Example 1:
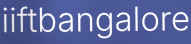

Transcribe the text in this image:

iiftbangalore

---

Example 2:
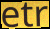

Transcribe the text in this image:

etr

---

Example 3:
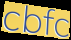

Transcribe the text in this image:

cbfc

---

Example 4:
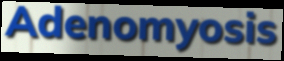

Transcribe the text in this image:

Adenomyosis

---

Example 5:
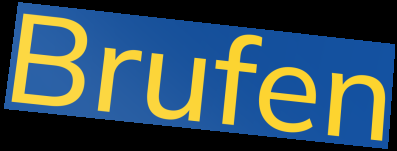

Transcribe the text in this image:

Brufen